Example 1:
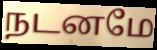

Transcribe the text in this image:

நடனமே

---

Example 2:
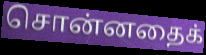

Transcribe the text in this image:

சொன்னதைக்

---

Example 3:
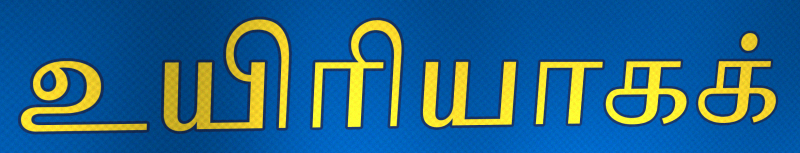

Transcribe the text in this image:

உயிரியாகக்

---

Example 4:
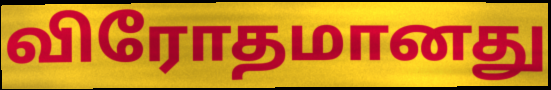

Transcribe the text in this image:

விரோதமானது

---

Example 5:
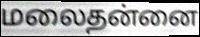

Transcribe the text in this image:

மலைதன்னை